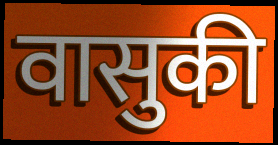
वासुकी